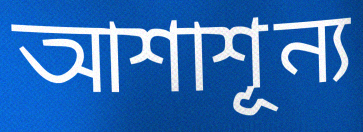
আশাশূন্য